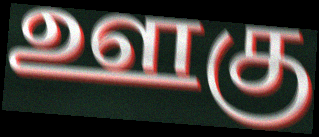
ஊகு